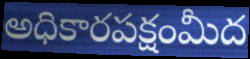
అధికారపక్షంమీద